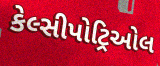
કેલ્સીપોટ્રિઓલ